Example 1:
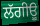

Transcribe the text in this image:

ਲੱਗੀਊ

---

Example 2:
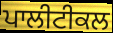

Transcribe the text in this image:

ਪਾਲੀਟੀਕਲ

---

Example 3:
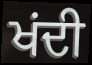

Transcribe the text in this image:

ਖਂਦੀ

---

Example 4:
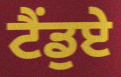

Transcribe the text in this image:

ਟੈਂਡੁਏ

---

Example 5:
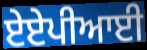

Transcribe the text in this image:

ਏਏਪੀਆਈ